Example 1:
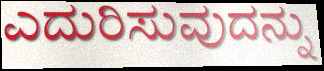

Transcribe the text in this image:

ಎದುರಿಸುವುದನ್ನು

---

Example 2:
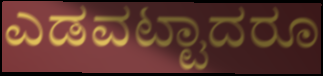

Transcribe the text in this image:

ಎಡವಟ್ಟಾದರೂ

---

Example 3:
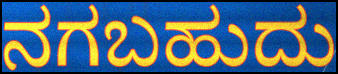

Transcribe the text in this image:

ನಗಬಹುದು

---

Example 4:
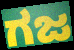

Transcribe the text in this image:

ಗಜ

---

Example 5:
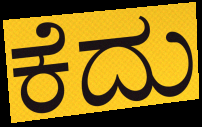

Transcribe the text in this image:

ಕೆದು